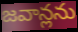
జవాన్లను